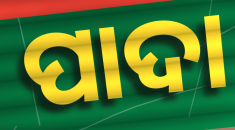
ପାଦା